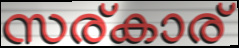
സര്കാര്